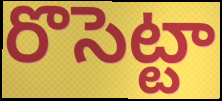
రొసెట్టా